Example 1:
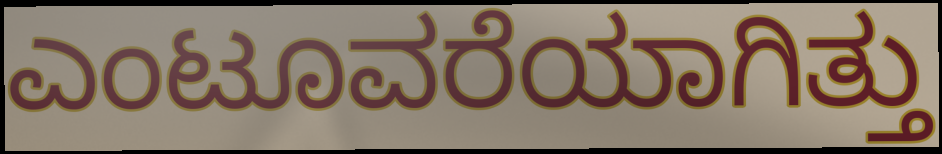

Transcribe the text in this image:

ಎಂಟೂವರೆಯಾಗಿತ್ತು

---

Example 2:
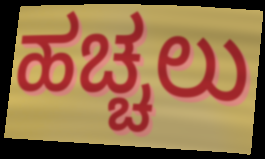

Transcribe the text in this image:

ಹಚ್ಚಲು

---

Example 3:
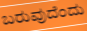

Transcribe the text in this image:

ಬರುವುದೆಂದು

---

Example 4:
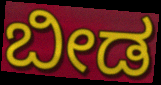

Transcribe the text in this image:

ಬೀಡ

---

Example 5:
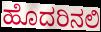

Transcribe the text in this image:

ಹೊದರಿನಲಿ